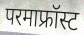
परमाफ्रॉस्ट